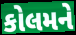
કોલમને